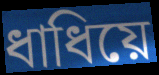
ধাধিয়ে